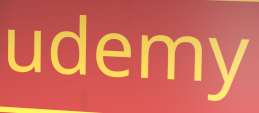
udemy